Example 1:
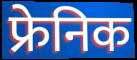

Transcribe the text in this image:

फ्रेनिक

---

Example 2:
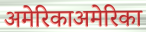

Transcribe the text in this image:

अमेरिकाअमेरिका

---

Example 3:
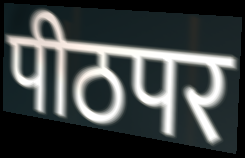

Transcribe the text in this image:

पीठपर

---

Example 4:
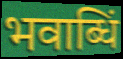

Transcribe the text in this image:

भवाब्धिं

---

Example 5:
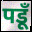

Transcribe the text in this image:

पडूँ